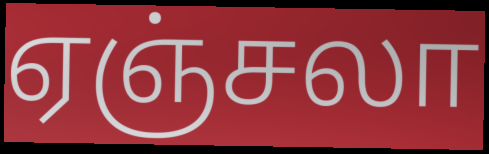
ஏஞ்சலா